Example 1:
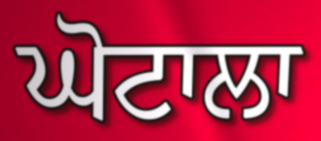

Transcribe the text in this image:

ਘੋਟਾਲਾ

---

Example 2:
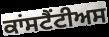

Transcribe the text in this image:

ਕਾਂਸਟੈਂਟੀਅਸ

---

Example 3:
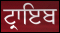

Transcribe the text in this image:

ਟ੍ਰਾਇਬ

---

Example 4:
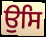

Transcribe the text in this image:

ਉਸਿ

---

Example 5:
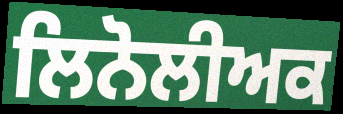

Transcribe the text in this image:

ਲਿਨੋਲੀਅਕ